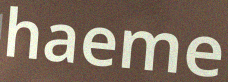
haeme